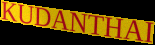
KUDANTHAI